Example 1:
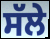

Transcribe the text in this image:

ਸੱਲੇ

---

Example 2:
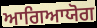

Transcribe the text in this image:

ਆਗਿਆਯੋਗ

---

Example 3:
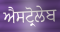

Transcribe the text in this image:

ਐਸਟ੍ਰੋਲੇਬ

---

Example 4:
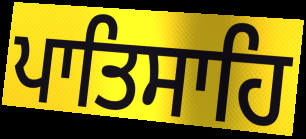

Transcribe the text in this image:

ਪਾਤਿਸਾਹਿ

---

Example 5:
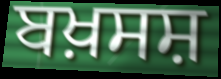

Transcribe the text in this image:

ਬਖ਼ਸਸ਼